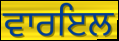
ਵਾਰਇਲ